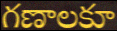
గణాలకూ